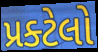
પ્રક્ટેલો